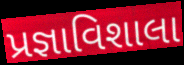
પ્રજ્ઞાવિશાલા